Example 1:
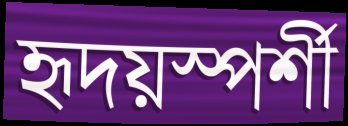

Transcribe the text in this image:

হৃদয়স্পর্শী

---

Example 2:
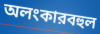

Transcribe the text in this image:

অলংকারবহুল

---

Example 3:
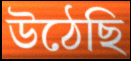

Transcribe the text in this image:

উঠেছি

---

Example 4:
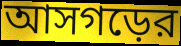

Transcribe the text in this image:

আসগড়ের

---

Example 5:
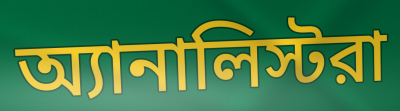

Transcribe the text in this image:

অ্যানালিস্টরা